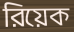
রিয়েক